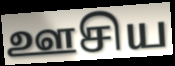
ஊசிய